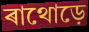
ৰাথোড়ে